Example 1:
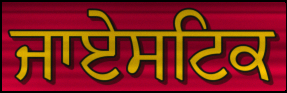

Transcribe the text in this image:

ਜਾਏਸਟਿਕ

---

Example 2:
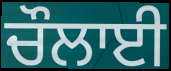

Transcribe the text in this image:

ਚੌਲਾਈ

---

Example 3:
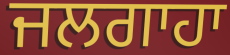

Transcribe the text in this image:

ਜਲਗਾਹਾ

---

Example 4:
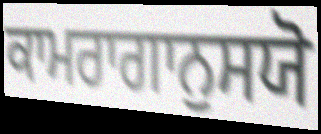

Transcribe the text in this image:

ਕਾਮਰਾਗਾਨੁਸਯੋ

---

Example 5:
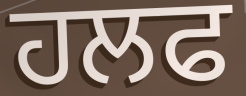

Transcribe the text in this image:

ਹਲਫ